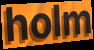
holm